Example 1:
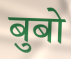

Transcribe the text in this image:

बुबो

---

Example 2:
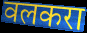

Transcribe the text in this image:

वलकरा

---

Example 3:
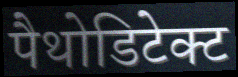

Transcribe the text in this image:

पैथोडिटेक्ट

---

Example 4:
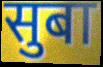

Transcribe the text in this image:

सुबा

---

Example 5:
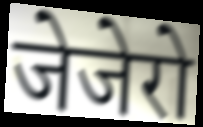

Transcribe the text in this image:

जेजेरो